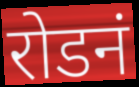
रोडनं